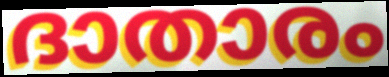
ദാതാരം